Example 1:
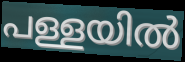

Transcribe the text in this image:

പള്ളയിൽ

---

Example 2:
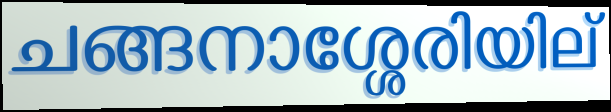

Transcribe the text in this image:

ചങ്ങനാശ്ശേരിയില്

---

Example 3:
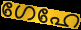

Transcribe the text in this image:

ഗേഹേ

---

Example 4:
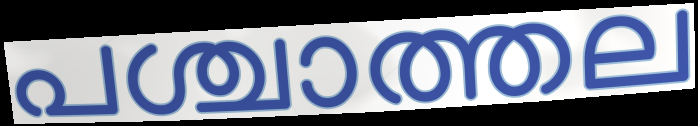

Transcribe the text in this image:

പശ്ചാത്തല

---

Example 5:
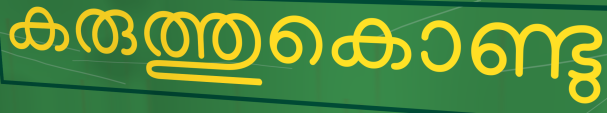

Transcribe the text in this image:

കരുത്തുകൊണ്ടു